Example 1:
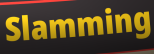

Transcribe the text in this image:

Slamming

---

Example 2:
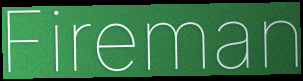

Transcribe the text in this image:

Fireman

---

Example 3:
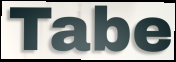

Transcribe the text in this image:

Tabe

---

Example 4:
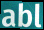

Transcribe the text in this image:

abl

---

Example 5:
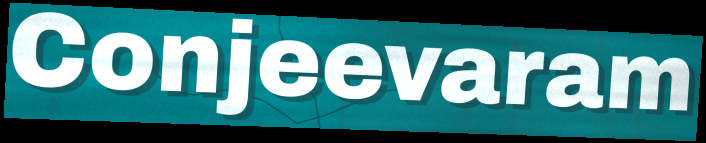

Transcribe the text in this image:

Conjeevaram